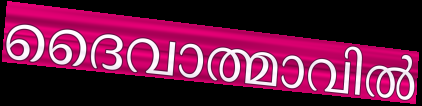
ദൈവാത്മാവിൽ